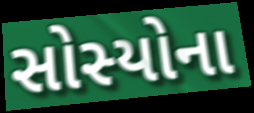
સોસ્યોના